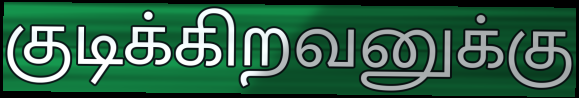
குடிக்கிறவனுக்கு